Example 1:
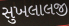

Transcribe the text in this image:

સુખલાલજી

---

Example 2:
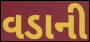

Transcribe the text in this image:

વડાની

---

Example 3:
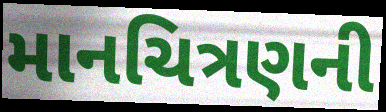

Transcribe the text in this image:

માનચિત્રણની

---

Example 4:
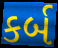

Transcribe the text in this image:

કર્બ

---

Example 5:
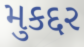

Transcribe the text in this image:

મુકદ્દર